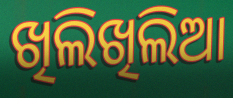
ଖିଲିଖିଲିଆ